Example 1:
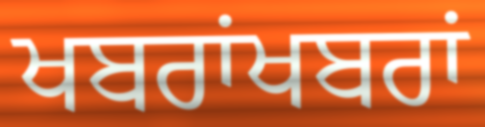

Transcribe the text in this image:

ਖਬਰਾਂਖਬਰਾਂ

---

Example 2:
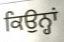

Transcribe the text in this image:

ਕਿਉਨ੍ਹਾਂ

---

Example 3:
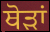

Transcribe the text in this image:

ਥੋੜਾਂ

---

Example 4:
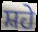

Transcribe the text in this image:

ਸ਼ਹੇ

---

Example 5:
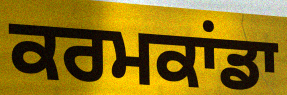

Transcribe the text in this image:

ਕਰਮਕਾਂਡਾ